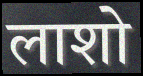
लाशो